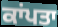
ਕਾਂਪਤਾ